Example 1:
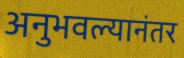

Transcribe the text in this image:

अनुभवल्यानंतर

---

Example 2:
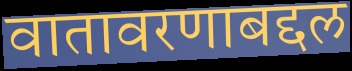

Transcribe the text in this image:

वातावरणाबद्दल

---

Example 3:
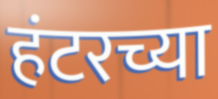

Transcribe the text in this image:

हंटरच्या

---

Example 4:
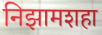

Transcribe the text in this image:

निझामशहा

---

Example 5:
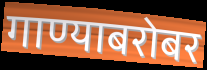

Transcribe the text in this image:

गाण्याबरोबर